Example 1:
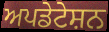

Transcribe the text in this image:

ਅਪਡੇਟੇਸ਼ਨ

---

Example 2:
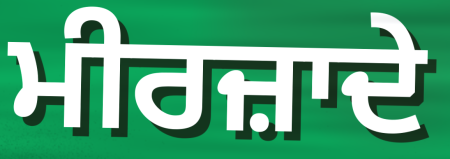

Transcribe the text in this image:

ਮੀਰਜ਼ਾਦੇ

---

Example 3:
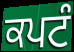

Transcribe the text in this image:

ਕਪਟੰ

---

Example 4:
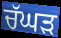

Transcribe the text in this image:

ਚੱਘੜ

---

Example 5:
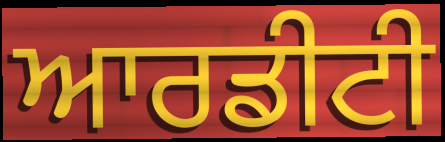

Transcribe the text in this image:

ਆਰਡੀਟੀ